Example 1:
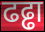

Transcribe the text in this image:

ढढ्ढा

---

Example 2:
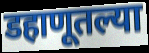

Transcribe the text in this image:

डहाणूतल्या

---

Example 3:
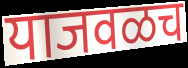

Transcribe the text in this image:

याजवळच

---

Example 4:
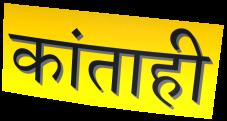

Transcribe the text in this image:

कांताही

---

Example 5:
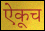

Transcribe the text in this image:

ऐकूच